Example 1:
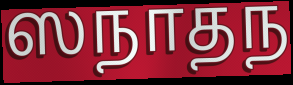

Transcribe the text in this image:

ஸநாதந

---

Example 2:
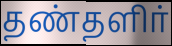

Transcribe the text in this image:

தண்தளிர்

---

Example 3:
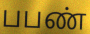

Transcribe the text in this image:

பபண்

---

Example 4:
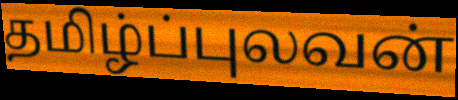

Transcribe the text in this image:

தமிழ்ப்புலவன்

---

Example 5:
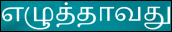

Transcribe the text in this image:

எழுத்தாவது